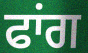
ਫਾਂਗ